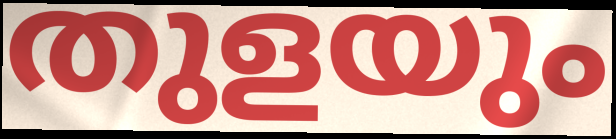
തുളയും